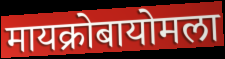
मायक्रोबायोमला